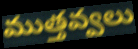
ముత్తవ్వలు